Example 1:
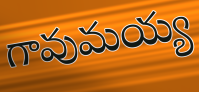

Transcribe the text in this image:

గావుమయ్య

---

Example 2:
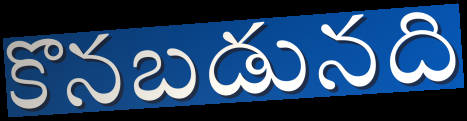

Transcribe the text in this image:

కొనబడునది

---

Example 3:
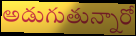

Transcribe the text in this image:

అడుగుతున్నారో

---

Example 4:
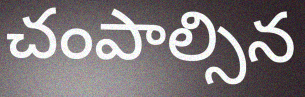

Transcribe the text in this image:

చంపాల్సిన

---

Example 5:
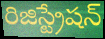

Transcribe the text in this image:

రిజిస్ట్రేషన్